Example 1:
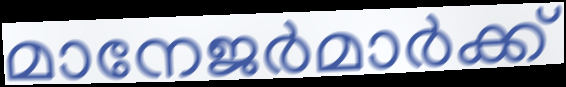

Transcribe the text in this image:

മാനേജർമാർക്ക്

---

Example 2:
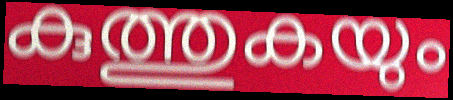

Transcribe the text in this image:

കുത്തുകയും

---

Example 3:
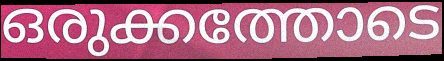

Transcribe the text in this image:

ഒരുക്കത്തോടെ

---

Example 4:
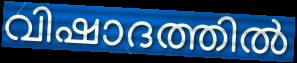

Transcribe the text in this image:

വിഷാദത്തിൽ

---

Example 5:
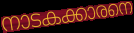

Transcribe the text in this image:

നാടകക്കാരനെ